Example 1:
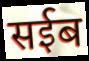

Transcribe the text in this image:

सईब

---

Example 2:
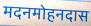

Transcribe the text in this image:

मदनमोहनदास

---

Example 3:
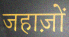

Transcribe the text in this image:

जहाज़ों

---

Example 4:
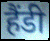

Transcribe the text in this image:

हैंडी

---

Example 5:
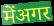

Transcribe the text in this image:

मेंअगर